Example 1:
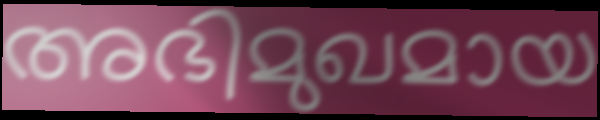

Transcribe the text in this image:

അഭിമുഖമായ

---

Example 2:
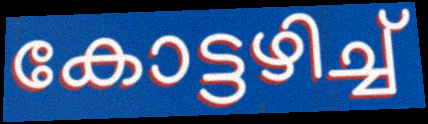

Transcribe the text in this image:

കോട്ടഴിച്ച്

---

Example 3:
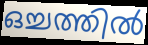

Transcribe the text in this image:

ഒച്ചത്തിൽ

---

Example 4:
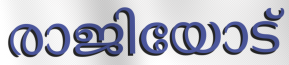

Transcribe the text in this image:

രാജിയോട്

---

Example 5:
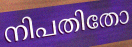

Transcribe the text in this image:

നിപതിതോ